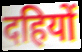
दहियों